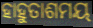
ହାହୁତାଶମୟ